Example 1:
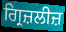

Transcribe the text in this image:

ਗ੍ਰਿਜ਼ਲੀਜ਼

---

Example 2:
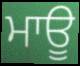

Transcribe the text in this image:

ਮਾਊ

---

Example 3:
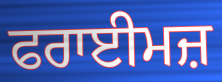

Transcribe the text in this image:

ਫਰਾਈਮਜ਼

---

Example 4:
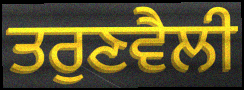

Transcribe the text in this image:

ਤਰੁਣਵੈਲੀ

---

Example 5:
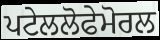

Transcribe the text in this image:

ਪਟੇਲਲੋਫੇਮੋਰਲ